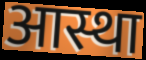
आस्था